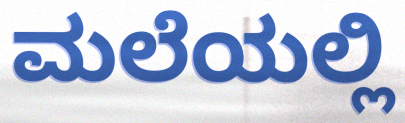
ಮಲೆಯಲ್ಲಿ